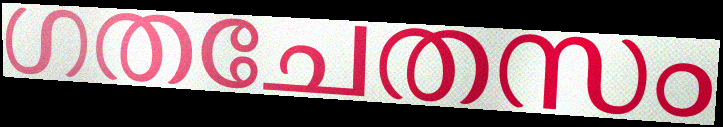
ഗതചേതസം